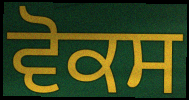
ਵੋਕਸ